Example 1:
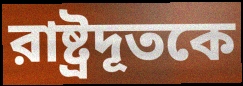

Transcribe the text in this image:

রাষ্ট্রদূতকে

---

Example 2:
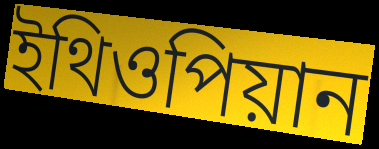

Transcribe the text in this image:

ইথিওপিয়ান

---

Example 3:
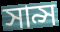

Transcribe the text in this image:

সান্স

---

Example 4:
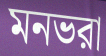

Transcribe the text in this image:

মনভরা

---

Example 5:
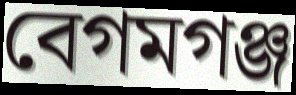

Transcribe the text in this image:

বেগমগঞ্জ